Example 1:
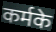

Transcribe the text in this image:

कर्मके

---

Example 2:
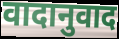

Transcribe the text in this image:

वादानुवाद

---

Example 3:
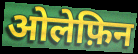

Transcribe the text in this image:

ओलेफ़िन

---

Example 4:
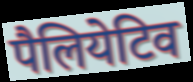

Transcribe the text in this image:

पैलियेटिव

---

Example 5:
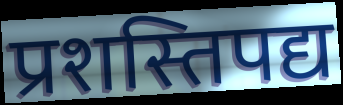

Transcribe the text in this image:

प्रशस्तिपद्य